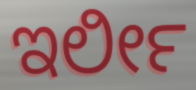
ಇರ್ಲೀ